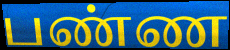
பண்ண